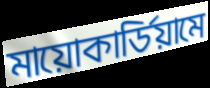
মায়োকার্ডিয়ামে